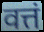
वत्तं